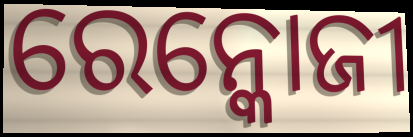
ରେନ୍କୋଜୀ